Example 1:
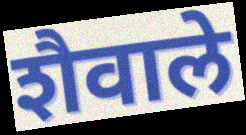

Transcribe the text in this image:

शैवाले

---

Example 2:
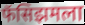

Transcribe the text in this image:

फॅसिझमला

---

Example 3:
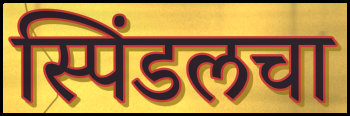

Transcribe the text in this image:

स्पिंडलचा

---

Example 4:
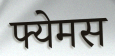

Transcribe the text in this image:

फ्येमस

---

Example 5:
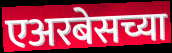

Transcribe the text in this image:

एअरबेसच्या